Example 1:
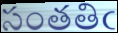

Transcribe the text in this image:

సంతతిఁ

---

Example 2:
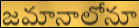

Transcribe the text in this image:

జమానాలోనూ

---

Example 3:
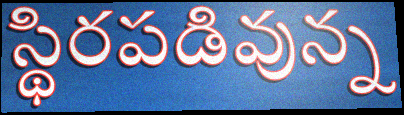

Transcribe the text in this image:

స్థిరపడివున్న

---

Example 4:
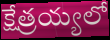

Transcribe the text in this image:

క్షేత్రయ్యలో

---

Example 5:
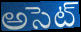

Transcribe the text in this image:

అసెట్